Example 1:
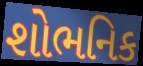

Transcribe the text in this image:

શોભનિક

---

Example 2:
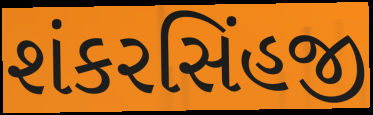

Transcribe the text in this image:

શંકરસિંહજી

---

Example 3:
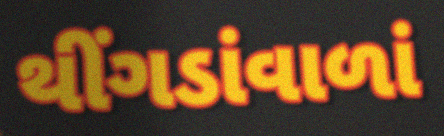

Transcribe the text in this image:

થીંગડાંવાળાં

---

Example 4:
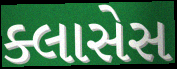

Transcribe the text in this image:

ક્લાસેસ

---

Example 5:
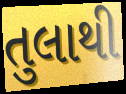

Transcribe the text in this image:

તુલાથી